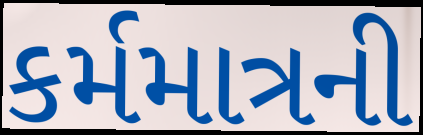
કર્મમાત્રની